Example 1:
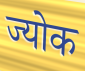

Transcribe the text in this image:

ज्योक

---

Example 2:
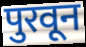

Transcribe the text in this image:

पुरवून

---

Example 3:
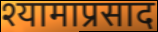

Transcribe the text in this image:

श्यामाप्रसाद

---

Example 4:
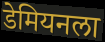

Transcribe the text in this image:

डेमियनला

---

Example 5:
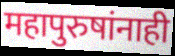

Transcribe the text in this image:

महापुरुषांनाही